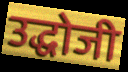
उद्धोजी